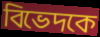
বিভেদকে